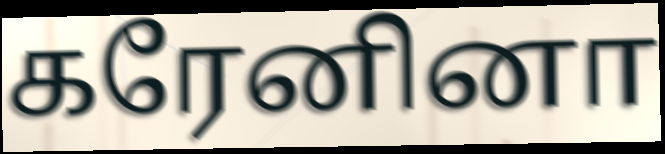
கரேனினா